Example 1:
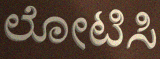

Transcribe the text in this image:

ಲೋಟಿಸಿ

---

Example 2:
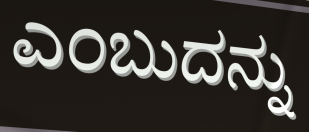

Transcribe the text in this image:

ಎಂಬುದನ್ನು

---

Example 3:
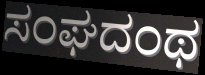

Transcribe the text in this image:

ಸಂಘದಂಥ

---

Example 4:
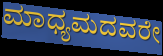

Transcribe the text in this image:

ಮಾಧ್ಯಮದವರೇ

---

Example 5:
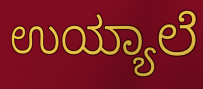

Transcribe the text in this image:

ಉಯ್ಯಾಲೆ